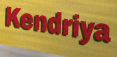
Kendriya